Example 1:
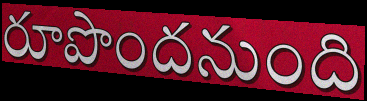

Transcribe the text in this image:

రూపొందనుంది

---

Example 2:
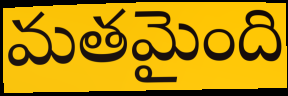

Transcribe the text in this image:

మతమైంది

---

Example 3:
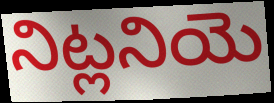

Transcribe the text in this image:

నిట్లనియె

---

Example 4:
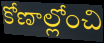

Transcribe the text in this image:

కోణాల్లోంచి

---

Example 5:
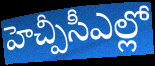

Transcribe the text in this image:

హెచ్పీసీఎల్లో